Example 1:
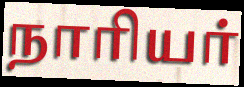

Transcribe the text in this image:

நாரியர்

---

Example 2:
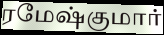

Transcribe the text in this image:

ரமேஷ்குமார்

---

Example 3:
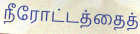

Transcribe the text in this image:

நீரோட்டத்தைத்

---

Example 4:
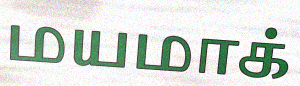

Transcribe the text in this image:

மயமாக்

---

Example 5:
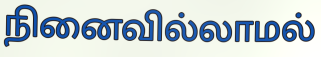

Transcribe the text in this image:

நினைவில்லாமல்